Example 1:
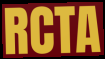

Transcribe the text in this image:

RCTA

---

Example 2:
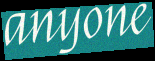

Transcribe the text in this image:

anyone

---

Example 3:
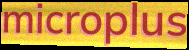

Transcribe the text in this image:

microplus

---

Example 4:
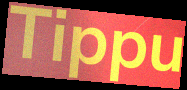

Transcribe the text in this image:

Tippu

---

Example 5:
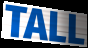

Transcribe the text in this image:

TALL